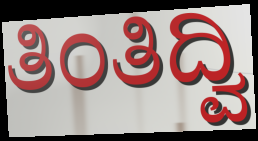
ತಿಂತಿದ್ವಿ